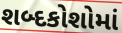
શબ્દકોશોમાં